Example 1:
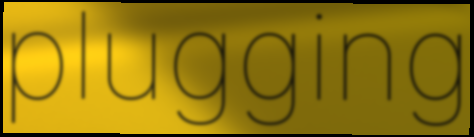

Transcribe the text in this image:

plugging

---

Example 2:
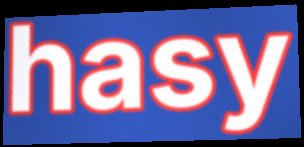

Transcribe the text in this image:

hasy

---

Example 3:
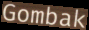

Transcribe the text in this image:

Gombak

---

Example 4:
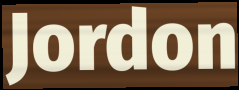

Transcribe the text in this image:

Jordon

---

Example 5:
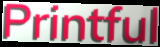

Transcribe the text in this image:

Printful